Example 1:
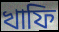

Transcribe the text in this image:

খাফি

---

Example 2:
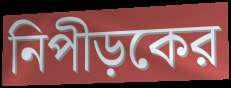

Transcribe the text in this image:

নিপীড়কের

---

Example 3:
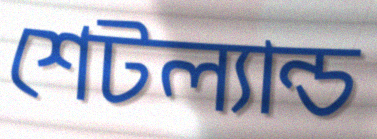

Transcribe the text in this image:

শেটল্যান্ড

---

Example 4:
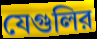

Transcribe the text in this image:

যেগুলির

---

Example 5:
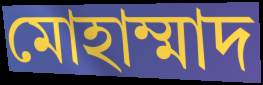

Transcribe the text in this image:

মোহাম্মাদ